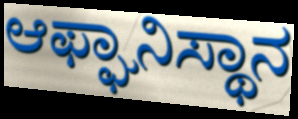
ಆಫ್ಘಾನಿಸ್ಥಾನ